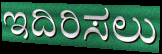
ಇದಿರಿಸಲು